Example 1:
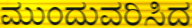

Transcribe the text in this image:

ಮುಂದುವರಿಸಿದ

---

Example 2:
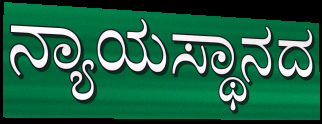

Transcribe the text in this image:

ನ್ಯಾಯಸ್ಥಾನದ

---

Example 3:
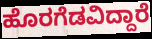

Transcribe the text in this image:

ಹೊರಗೆಡವಿದ್ದಾರೆ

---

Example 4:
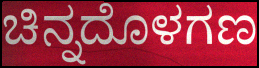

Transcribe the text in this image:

ಚಿನ್ನದೊಳಗಣ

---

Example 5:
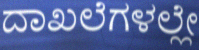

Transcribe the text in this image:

ದಾಖಲೆಗಳಲ್ಲೇ